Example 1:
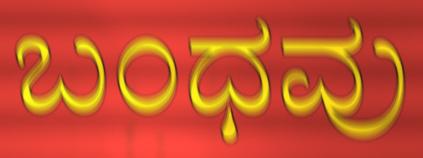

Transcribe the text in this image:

ಬಂಧವು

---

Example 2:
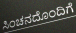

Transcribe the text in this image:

ಸಿಂಚನದೊಂದಿಗೆ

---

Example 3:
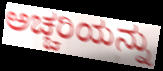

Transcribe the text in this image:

ಅಚ್ಚರಿಯನ್ನು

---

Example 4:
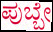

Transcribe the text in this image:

ಪುಬ್ಬೇ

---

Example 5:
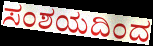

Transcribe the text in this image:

ಸಂಶಯದಿಂದ